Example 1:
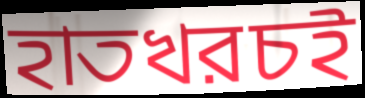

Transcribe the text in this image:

হাতখরচই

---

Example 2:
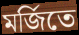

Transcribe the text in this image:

মর্জিতে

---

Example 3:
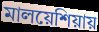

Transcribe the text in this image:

মালয়েশিয়ায়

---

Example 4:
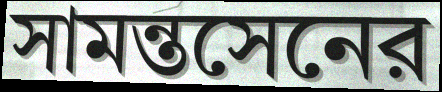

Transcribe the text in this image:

সামন্তসেনের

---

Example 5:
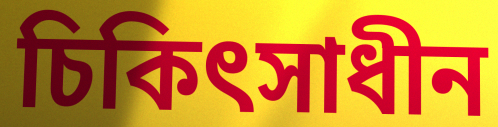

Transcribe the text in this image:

চিকিৎসাধীন